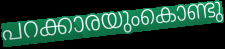
പറക്കാരയുംകൊണ്ടു